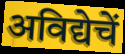
अविद्येचें